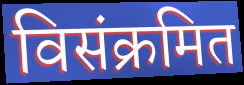
विसंक्रमित